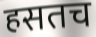
हसतच